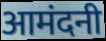
आमंदनी